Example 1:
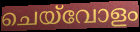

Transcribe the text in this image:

ചെയ്‌വോളം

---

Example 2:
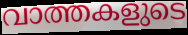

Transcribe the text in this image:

വാത്തകളുടെ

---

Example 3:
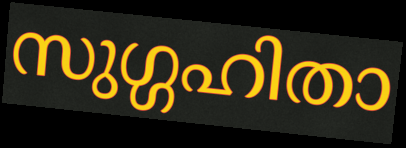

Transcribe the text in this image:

സുഗ്ഗഹിതാ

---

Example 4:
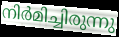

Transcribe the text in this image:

നിർമിച്ചിരുന്നു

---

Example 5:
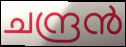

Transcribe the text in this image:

ചന്ദ്രൻ